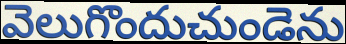
వెలుగొందుచుండెను